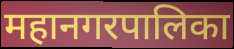
महानगरपालिका